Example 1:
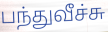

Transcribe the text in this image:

பந்துவீச்சு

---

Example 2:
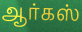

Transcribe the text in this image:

ஆர்கஸ்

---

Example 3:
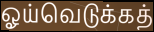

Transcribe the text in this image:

ஓய்வெடுக்கத்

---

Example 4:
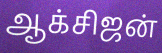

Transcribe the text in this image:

ஆக்சிஜன்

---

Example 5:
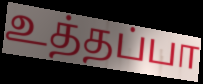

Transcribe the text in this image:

உத்தப்பா